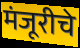
मंजूरीचे